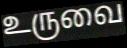
உருவை